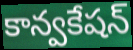
కాన్వకేషన్